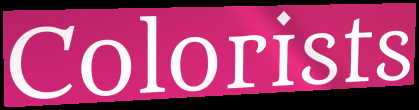
Colorists